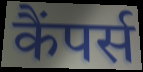
कैंपर्स